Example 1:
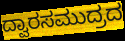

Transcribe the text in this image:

ದ್ವಾರಸಮುದ್ರದ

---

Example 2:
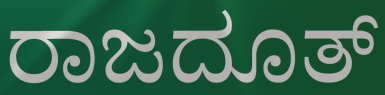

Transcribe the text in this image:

ರಾಜದೂತ್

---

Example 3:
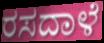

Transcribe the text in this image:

ರಸದಾಳೆ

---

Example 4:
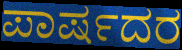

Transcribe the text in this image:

ಪಾರ್ಷದರ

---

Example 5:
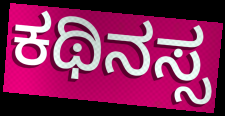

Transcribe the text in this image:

ಕಥಿನಸ್ಸ